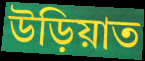
উড়িয়াত